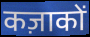
कज़ाकों